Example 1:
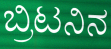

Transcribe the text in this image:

ಬ್ರಿಟನಿನ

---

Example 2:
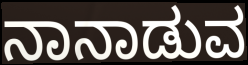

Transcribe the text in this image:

ನಾನಾಡುವ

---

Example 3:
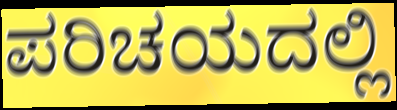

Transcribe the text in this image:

ಪರಿಚಯದಲ್ಲಿ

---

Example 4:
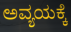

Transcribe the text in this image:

ಅವ್ಯಯಕ್ಕೆ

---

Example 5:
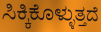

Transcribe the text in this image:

ಸಿಕ್ಕಿಕೊಳ್ಳುತ್ತದೆ